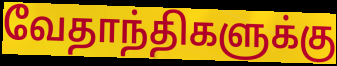
வேதாந்திகளுக்கு